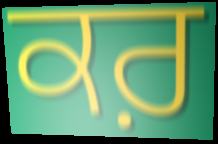
ਕਰ਼